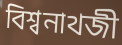
বিশ্বনাথজী